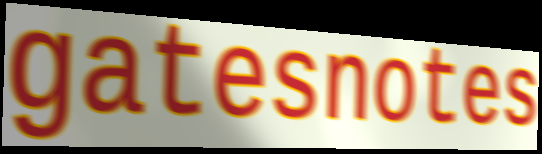
gatesnotes